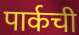
पार्कची